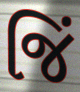
જિં